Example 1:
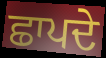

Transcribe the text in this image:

ਛਾਪਦੇ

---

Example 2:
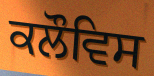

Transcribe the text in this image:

ਕਲੌਵਿਸ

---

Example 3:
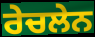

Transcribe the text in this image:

ਰੇਚਲੇਨ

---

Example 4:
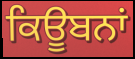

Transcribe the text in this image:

ਕਿਊਬਨਾਂ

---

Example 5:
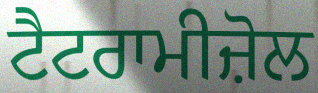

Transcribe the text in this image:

ਟੈਟਰਾਮੀਜ਼ੋਲ